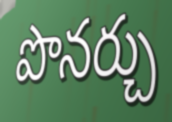
పొనర్చు